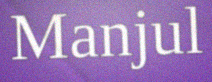
Manjul